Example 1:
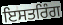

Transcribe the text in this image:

ਇਸਤਰਿੰਗ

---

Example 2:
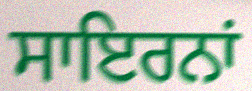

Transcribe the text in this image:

ਸਾਇਰਨਾਂ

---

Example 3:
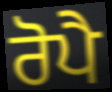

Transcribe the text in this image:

ਰੋਪੈ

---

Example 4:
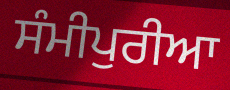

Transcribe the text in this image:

ਸੰਮੀਪੁਰੀਆ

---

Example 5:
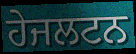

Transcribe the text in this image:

ਹੇਜਲਟਨ